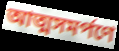
আত্মসমর্পণে